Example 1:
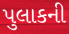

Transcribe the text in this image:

પુલાકની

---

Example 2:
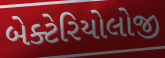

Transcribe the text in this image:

બેક્ટેરિયોલોજી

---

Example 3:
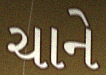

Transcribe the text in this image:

ચાને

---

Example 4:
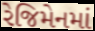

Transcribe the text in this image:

રેજિમેનમાં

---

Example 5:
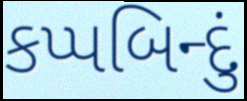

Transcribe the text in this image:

કપ્પબિન્દું